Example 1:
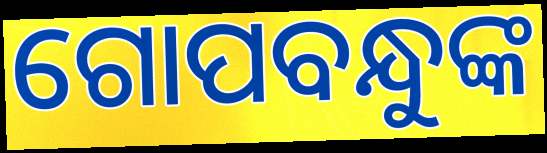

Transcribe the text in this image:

ଗୋପବନ୍ଧୁଙ୍କ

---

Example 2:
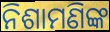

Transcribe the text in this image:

ନିଶାମଣିଙ୍କ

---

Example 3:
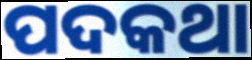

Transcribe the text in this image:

ପଦକଥା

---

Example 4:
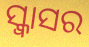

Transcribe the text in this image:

ସ୍କ୍ବାସର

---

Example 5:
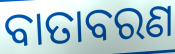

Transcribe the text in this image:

ବାତାବରଣ